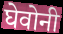
घेवोनी